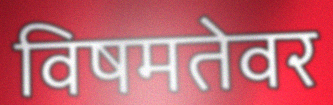
विषमतेवर